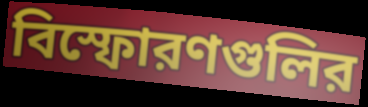
বিস্ফোরণগুলির